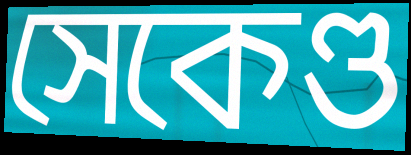
সেকেণ্ড